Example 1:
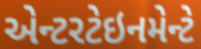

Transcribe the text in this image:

એન્ટરટેઇનમેન્ટે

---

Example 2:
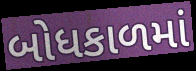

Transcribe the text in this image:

બોધકાળમાં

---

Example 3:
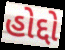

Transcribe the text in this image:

હોદ્દો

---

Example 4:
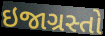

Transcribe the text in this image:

ઇજાગ્રસ્તો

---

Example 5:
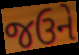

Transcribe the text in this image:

જઉને